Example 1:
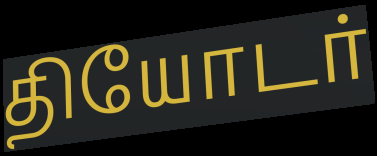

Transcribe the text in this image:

தியோடர்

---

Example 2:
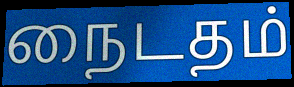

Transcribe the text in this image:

நைடதம்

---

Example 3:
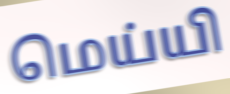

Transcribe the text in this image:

மெய்யி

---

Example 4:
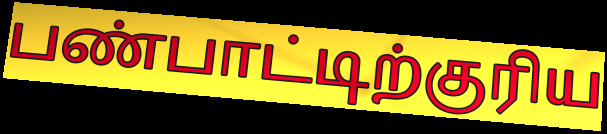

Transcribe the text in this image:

பண்பாட்டிற்குரிய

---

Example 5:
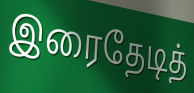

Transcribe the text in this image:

இரைதேடித்